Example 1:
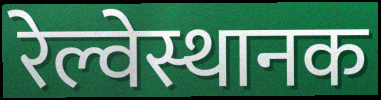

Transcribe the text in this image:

रेल्वेस्थानक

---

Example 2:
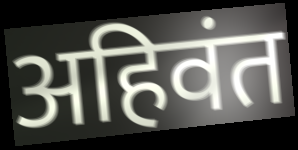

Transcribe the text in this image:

अहिवंत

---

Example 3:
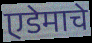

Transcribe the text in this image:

एडेमाचे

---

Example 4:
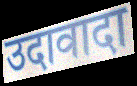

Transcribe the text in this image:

उदावादा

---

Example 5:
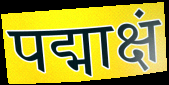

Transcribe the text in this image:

पद्माक्षं